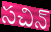
సచిన్